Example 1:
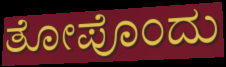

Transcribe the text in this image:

ತೋಪೊಂದು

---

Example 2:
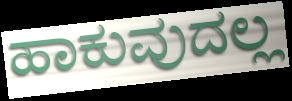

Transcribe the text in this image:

ಹಾಕುವುದಲ್ಲ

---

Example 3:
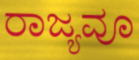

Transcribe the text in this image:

ರಾಜ್ಯವೂ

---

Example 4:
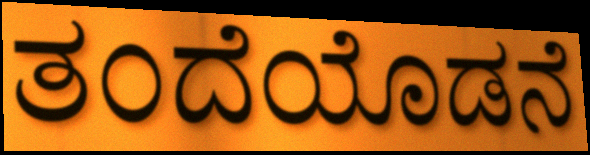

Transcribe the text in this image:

ತಂದೆಯೊಡನೆ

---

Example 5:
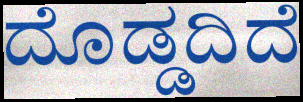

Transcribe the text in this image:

ದೊಡ್ಡದಿದೆ